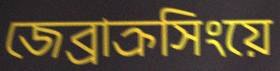
জেব্রাক্রসিংয়ে